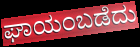
ಘಾಯಂಬಡೆದು